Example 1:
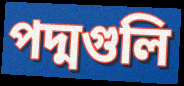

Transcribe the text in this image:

পদ্মগুলি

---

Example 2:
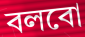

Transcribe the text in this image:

বলবো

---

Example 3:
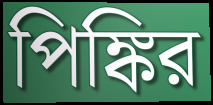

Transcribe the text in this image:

পিঙ্কির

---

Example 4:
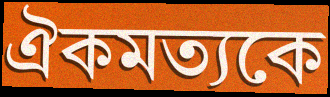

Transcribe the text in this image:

ঐকমত্যকে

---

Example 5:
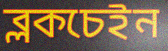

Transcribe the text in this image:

ব্লকচেইন